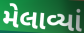
મેલાવ્યાં